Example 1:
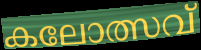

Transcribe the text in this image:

കലോത്സവ്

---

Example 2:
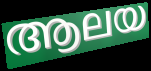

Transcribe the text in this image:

ആലയ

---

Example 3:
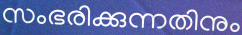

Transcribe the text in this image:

സംഭരിക്കുന്നതിനും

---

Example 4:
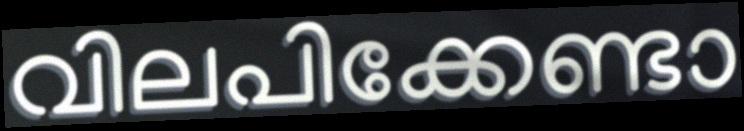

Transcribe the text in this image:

വിലപിക്കേണ്ടാ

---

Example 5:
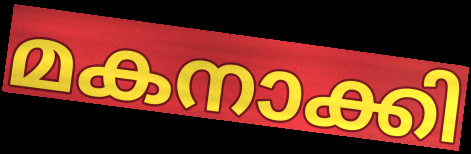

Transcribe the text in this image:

മകനാക്കി